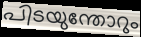
പിടയുന്തോറും